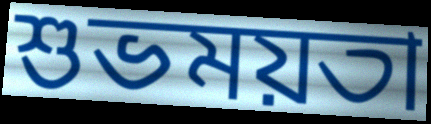
শুভময়তা